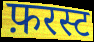
फ़रस्ट